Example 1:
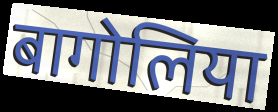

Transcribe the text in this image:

बागोलिया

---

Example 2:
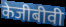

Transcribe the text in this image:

केजीबीवी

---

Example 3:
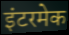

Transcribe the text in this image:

इंटरमेक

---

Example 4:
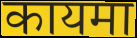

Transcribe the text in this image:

कायमा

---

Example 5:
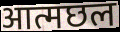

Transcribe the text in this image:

आत्मछल